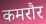
कमरौर